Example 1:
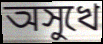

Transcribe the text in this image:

অসুখে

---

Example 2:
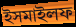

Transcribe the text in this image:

ইসমাইলফ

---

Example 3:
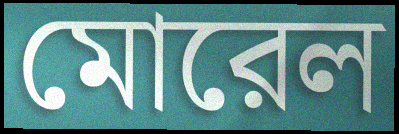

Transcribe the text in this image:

মোরেল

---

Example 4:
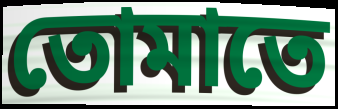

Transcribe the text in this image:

তোমাতে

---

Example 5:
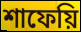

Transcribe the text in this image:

শাফেয়ি